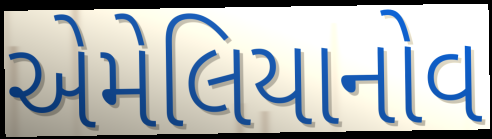
એમેલિયાનોવ